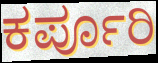
ಕರ್ಪೂರಿ